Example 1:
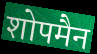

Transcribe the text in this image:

शोपमैन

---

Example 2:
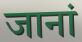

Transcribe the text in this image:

जानां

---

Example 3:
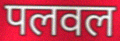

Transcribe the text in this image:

पलवल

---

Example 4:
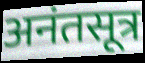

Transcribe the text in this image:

अनंतसूत्र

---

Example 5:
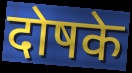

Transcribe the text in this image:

दोषके